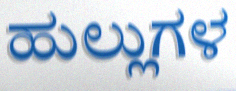
ಹುಲ್ಲುಗಳ